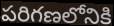
పరిగణలోనికి